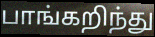
பாங்கறிந்து